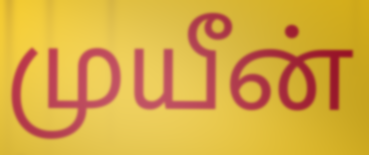
முயீன்